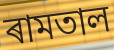
ৰামতাল